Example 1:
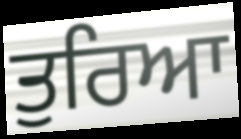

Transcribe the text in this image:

ਤੁਰਿਆ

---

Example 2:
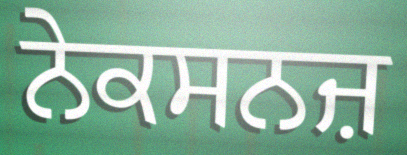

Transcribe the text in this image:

ਨੇਕਸਨਜ਼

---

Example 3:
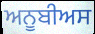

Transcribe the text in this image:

ਅਨੂਬੀਅਸ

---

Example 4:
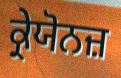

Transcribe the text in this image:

ਕ੍ਰੇਯੋਨਜ਼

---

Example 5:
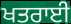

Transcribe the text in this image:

ਖਤਰਾਈ